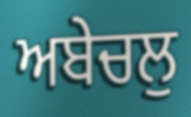
ਅਬੇਚਲੁ